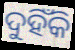
ଦୁହିଁକି